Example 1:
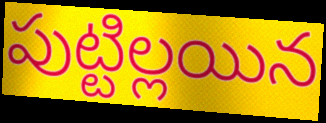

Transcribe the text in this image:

పుట్టిల్లయిన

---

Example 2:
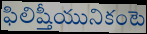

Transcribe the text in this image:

ఫిలిష్తీయునికంటె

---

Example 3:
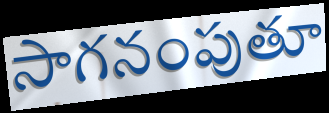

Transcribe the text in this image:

సాగనంపుతూ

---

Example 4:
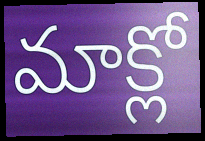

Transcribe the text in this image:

మాక్లో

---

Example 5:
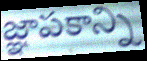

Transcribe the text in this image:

జ్ఞాపకాన్ని